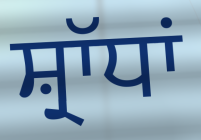
ਸ਼੍ਰਾੱਧਾਂ